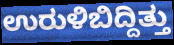
ಉರುಳಿಬಿದ್ದಿತ್ತು